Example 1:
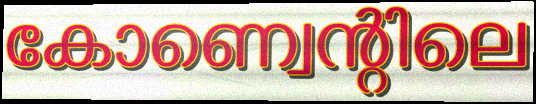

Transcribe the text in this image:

കോണ്വെന്റിലെ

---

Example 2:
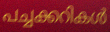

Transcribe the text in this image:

പച്ചക്കറികൾ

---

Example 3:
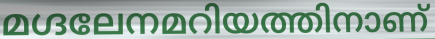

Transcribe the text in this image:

മഗ്ദലേനമറിയത്തിനാണ്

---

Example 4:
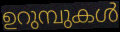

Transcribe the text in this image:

ഉറുമ്പുകൾ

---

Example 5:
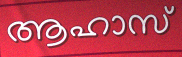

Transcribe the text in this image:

ആഹാസ്